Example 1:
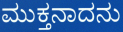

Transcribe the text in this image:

ಮುಕ್ತನಾದನು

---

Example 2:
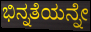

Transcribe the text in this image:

ಭಿನ್ನತೆಯನ್ನೇ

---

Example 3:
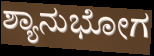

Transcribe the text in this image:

ಶ್ಯಾನುಭೋಗ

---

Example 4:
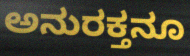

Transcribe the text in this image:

ಅನುರಕ್ತನೂ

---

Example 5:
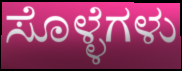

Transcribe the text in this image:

ಸೊಳ್ಳೆಗಳು